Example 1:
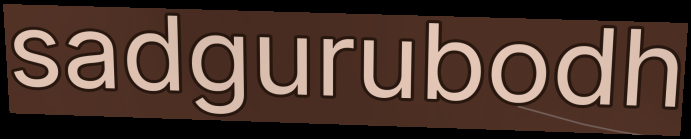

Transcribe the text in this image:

sadgurubodh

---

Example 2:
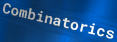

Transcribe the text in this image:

Combinatorics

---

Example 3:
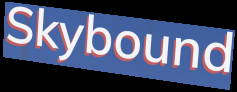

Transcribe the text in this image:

Skybound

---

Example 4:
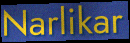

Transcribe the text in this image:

Narlikar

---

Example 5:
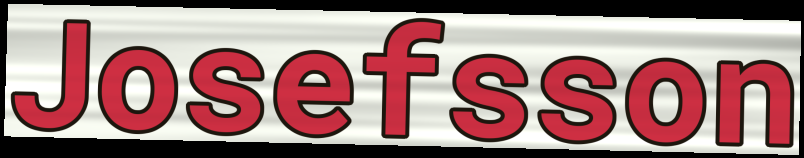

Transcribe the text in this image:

Josefsson